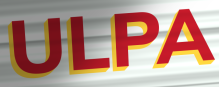
ULPA